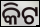
କିଟ